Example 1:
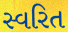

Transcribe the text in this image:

સ્વરિત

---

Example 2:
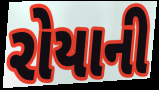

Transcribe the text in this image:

રોયાની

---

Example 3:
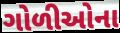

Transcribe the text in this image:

ગોળીઓના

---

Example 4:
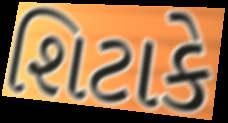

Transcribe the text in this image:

શિટાકે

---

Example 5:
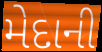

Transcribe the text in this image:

મેદાની